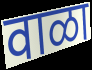
वाळा